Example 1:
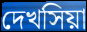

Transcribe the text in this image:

দেখসিয়া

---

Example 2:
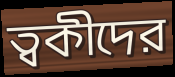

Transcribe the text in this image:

ত্বকীদের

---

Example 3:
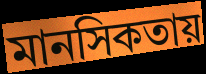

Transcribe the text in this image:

মানসিকতায়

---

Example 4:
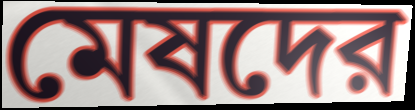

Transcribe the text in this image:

মেষদের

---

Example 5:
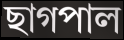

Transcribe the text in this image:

ছাগপাল